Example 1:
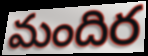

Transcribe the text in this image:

మందిర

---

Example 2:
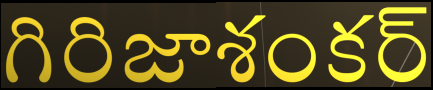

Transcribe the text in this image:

గిరిజాశంకర్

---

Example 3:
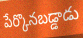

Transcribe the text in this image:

పేర్కొనబడ్డాడు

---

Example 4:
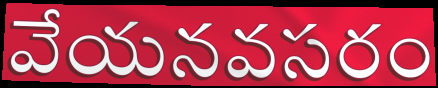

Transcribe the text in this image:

వేయనవసరం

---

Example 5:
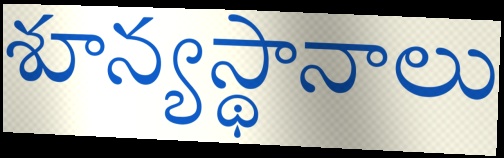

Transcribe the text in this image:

శూన్యస్థానాలు